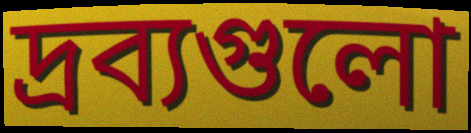
দ্রব্যগুলো